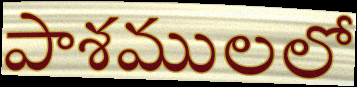
పాశములలో